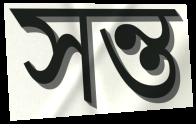
সন্ত